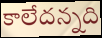
కాలేదన్నది